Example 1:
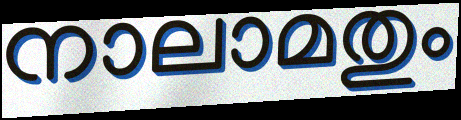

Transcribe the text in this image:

നാലാമതും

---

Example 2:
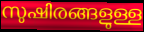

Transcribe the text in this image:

സുഷിരങ്ങളുള്ള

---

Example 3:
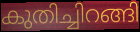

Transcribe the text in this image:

കുതിച്ചിറങ്ങി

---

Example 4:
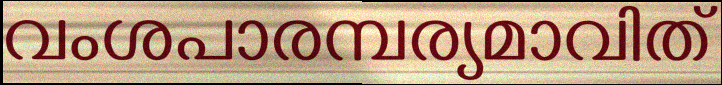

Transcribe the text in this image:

വംശപാരമ്പര്യമാവിത്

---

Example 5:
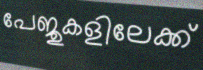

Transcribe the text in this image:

പേജുകളിലേക്ക്